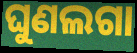
ଘୁଣଲଗା